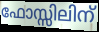
ഫോസ്സിലിന്